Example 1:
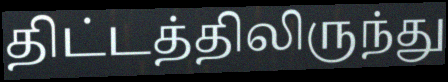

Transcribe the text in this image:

திட்டத்திலிருந்து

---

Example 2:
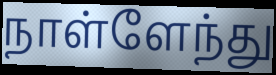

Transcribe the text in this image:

நாள்ளேந்து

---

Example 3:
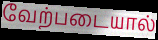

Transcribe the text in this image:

வேற்படையால்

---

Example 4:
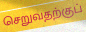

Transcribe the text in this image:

செறுவதற்குப்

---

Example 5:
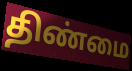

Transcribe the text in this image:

திண்மை